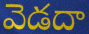
వెడదా